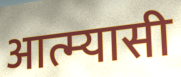
आत्म्यासी